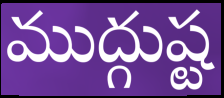
ముద్గుష్ట